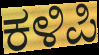
ಕಳಿಪಿ